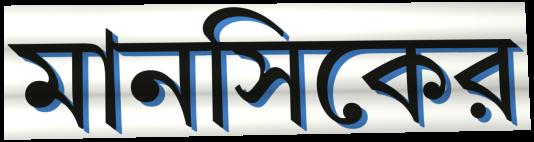
মানসিকের